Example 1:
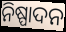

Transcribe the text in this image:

ନିଷ୍ପାଦନ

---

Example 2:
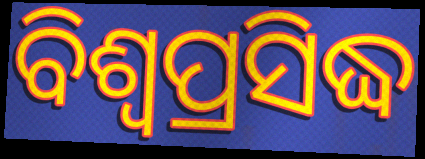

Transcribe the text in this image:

ବିଶ୍ଵପ୍ରସିଦ୍ଧ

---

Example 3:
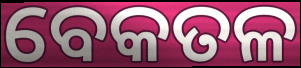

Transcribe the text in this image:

ବେକତଳ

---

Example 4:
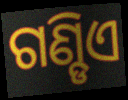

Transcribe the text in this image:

ଗଣ୍ଡିଏ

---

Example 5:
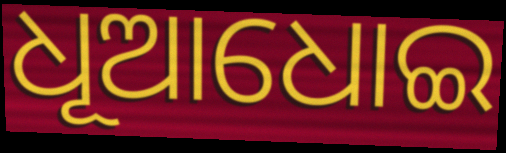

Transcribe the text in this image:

ଧୂଆଧୋଇ